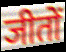
जीतों